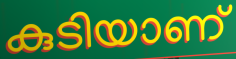
കുടിയാണ്